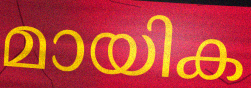
മായിക